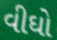
વીઘો